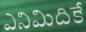
ఎనిమిదికే